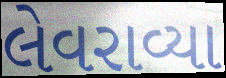
લેવરાવ્યા